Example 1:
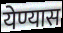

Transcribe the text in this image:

येण्यास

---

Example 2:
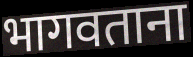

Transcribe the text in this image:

भागवताना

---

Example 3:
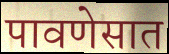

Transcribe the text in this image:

पावणेसात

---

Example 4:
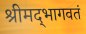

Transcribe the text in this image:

श्रीमद्‌भागवतं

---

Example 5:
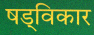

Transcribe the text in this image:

षड्‌विकार